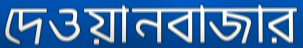
দেওয়ানবাজার